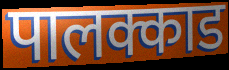
पालक्काड